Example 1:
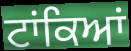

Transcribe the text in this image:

ਟਾਂਕਿਆਂ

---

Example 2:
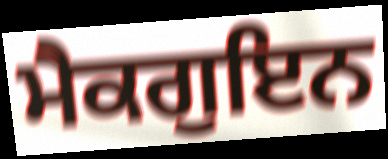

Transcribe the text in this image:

ਮੈਕਗੁਇਨ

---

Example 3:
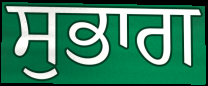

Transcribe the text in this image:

ਸੁਭਾਗ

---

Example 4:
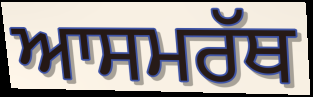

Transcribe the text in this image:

ਆਸਮਰੱਥ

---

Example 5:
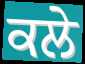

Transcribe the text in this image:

ਕਲੇ